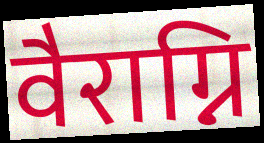
वैराग्नि